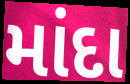
માંદા